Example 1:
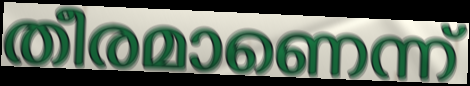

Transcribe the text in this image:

തീരമാണെന്ന്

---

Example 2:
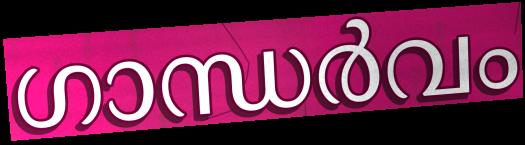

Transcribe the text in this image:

ഗാന്ധർവം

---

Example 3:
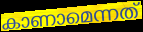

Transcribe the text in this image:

കാണാമെന്നത്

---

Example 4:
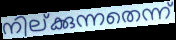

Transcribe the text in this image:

നില്ക്കുന്നതെന്ന്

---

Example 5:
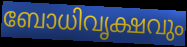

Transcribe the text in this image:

ബോധിവൃക്ഷവും